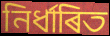
নিৰ্ধাৰিত